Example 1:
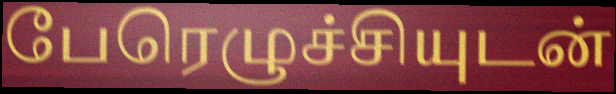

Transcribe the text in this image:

பேரெழுச்சியுடன்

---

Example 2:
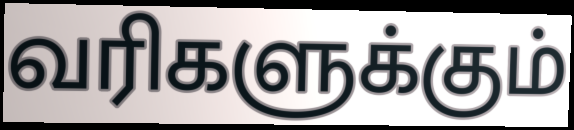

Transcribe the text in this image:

வரிகளுக்கும்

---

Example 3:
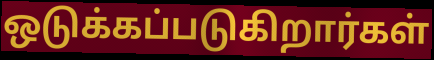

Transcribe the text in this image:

ஒடுக்கப்படுகிறார்கள்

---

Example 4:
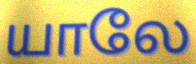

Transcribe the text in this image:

யாலே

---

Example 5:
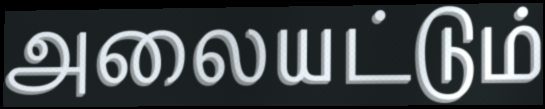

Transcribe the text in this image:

அலையட்டும்